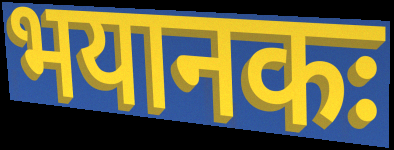
भयानकः